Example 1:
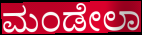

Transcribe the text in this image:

ಮಂಡೇಲಾ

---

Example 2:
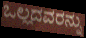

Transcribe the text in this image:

ಒಲ್ಲದವರನ್ನು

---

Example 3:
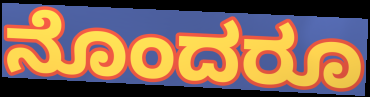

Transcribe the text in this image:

ನೊಂದರೂ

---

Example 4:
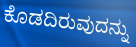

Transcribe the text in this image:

ಕೊಡದಿರುವುದನ್ನು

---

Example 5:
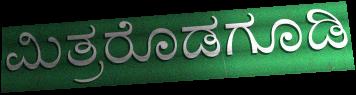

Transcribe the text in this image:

ಮಿತ್ರರೊಡಗೂಡಿ